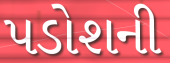
પડોશની